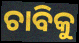
ଚାବିକୁ